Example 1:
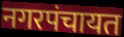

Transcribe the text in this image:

नगरपंचायत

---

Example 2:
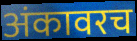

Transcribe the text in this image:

अंकावरच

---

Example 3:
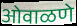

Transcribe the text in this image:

ओवाळणे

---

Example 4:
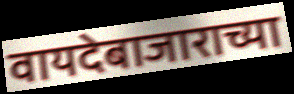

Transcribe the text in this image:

वायदेबाजाराच्या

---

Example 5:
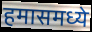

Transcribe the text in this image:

हमासमध्ये